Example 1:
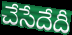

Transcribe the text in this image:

చేసేదేదీ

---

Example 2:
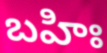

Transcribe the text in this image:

బహిః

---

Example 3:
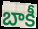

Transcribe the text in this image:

బాకీ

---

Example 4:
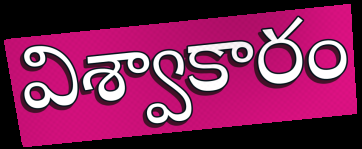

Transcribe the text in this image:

విశ్వాకారం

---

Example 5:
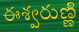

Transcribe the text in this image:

ఈశ్వరుణ్ణి